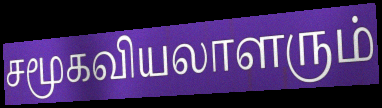
சமூகவியலாளரும்